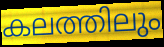
കലത്തിലും